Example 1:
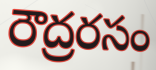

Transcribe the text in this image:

రౌద్రరసం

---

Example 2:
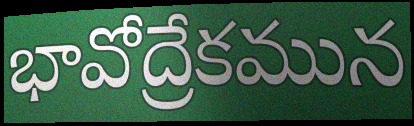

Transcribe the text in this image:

భావోద్రేకమున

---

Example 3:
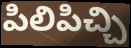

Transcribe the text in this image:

పిలిపిచ్చి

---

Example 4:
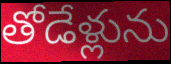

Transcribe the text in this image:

తోడేళ్లును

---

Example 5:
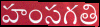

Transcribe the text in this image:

హంసగతి